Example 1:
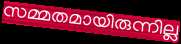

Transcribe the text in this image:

സമ്മതമായിരുന്നില്ല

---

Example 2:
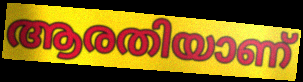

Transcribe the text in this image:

ആരതിയാണ്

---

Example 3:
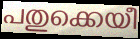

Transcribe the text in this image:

പതുക്കെയീ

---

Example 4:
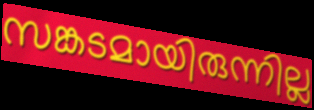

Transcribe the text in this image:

സങ്കടമായിരുന്നില്ല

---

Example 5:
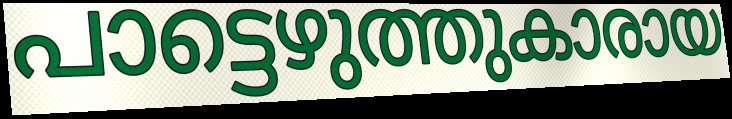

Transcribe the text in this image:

പാട്ടെഴുത്തുകാരായ